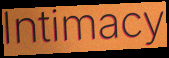
Intimacy